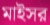
মাইসর